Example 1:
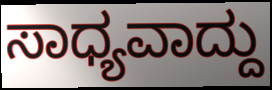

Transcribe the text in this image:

ಸಾಧ್ಯವಾದ್ದು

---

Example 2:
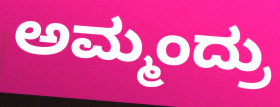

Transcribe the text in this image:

ಅಮ್ಮಂದ್ರು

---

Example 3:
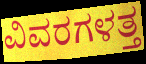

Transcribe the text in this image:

ವಿವರಗಳತ್ತ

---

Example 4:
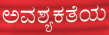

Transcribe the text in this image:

ಅವಶ್ಯಕತೆಯ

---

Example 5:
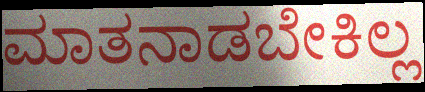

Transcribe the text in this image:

ಮಾತನಾಡಬೇಕಿಲ್ಲ